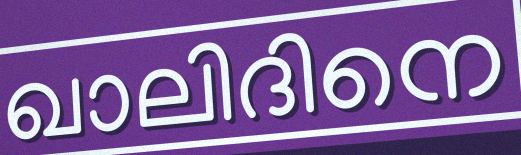
ഖാലിദിനെ